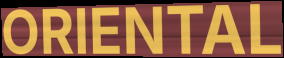
ORIENTAL